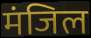
मंजिल